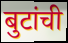
बुटांची